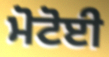
ਮੋਟੋਈ